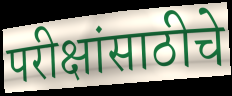
परीक्षांसाठीचे